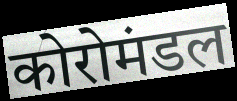
कोरोमंडल